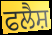
ਫਲੈਸ਼